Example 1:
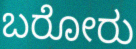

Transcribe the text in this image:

ಬರೋರು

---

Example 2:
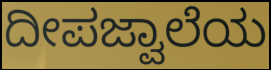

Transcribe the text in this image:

ದೀಪಜ್ವಾಲೆಯ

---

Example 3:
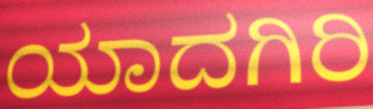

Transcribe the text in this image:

ಯಾದಗಿರಿ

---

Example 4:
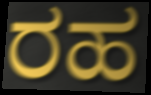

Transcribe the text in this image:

ರಹ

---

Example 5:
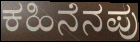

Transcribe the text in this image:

ಕಹಿನೆನಪು